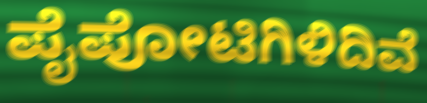
ಪೈಪೋಟಿಗಿಳಿದಿವೆ